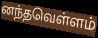
னந்தவெள்ளம்